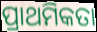
ପ୍ରାଥମିକତା